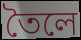
তৈলে